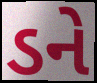
ડને